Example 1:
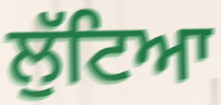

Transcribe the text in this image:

ਲੁੱਟਿਆ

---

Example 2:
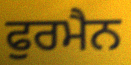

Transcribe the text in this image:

ਫੁਰਮੈਨ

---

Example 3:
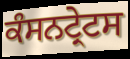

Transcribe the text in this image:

ਕੰਸਨਟ੍ਰੇਟਸ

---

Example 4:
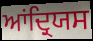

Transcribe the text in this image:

ਆਂਦ੍ਰਿਯਸ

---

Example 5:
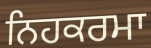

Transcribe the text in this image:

ਨਿਹਕਰਮਾ